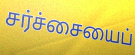
சர்ச்சையைப்